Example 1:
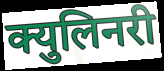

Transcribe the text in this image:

क्युलिनरी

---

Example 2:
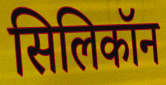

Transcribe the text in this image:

सिलिकॉन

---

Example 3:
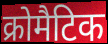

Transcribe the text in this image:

क्रोमैटिक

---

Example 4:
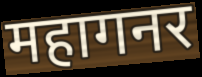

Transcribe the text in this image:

महागनर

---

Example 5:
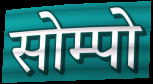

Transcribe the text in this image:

सोम्पो